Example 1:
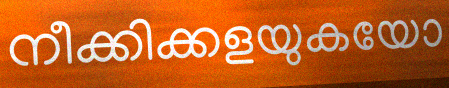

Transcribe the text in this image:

നീക്കിക്കളയുകയോ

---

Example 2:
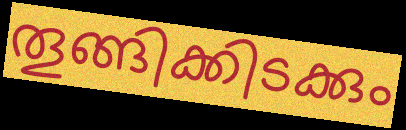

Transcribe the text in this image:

തൂങ്ങിക്കിടക്കും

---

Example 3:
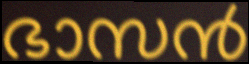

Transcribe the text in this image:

ഭാസൻ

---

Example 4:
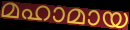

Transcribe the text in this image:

മഹാമായ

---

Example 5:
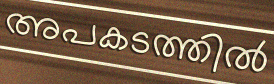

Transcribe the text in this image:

അപകടത്തിൽ